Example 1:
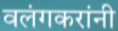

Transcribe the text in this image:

वलंगकरांनी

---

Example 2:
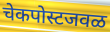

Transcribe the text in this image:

चेकपोस्टजवळ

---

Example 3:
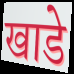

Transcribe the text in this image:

खाडे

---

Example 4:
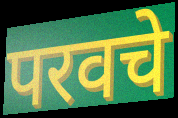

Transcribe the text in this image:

परवचे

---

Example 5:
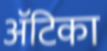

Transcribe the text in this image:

ॲटिका